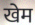
खेम